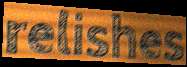
relishes